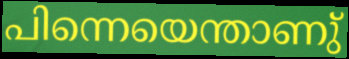
പിന്നെയെന്താണു്